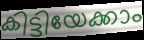
കിട്ടിയേക്കാം